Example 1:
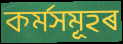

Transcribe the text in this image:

কৰ্মসমূহৰ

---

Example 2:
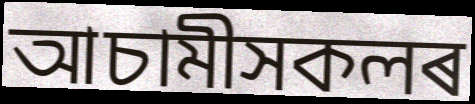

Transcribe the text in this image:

আচামীসকলৰ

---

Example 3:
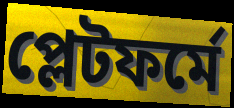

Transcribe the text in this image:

প্লেটফৰ্মে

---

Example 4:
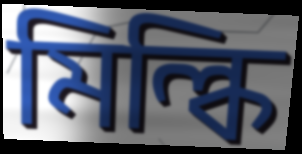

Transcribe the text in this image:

মিল্কি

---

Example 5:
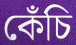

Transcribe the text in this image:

কেঁচি